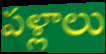
పళ్లాలు